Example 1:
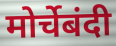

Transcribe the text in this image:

मोर्चेबंदी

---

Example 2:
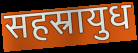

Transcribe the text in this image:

सहस्रायुध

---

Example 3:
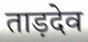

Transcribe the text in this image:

ताड़देव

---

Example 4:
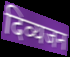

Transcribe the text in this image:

दिव्यजन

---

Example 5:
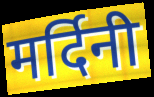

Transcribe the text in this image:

मर्दिनी